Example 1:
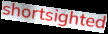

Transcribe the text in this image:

shortsighted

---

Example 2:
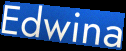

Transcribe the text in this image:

Edwina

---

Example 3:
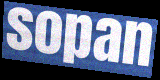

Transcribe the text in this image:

sopan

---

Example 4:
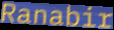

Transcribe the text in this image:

Ranabir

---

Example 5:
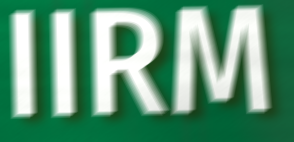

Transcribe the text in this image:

IIRM